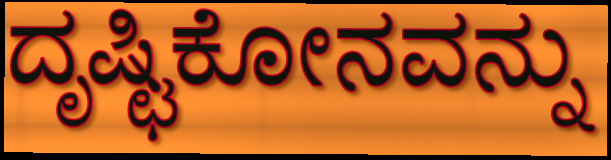
ದೃಷ್ಟಿಕೋನವನ್ನು